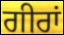
ਗੀਰਾਂ